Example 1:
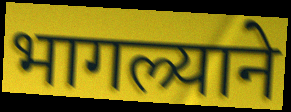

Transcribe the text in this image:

भागल्याने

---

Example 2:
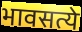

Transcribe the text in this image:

भावसत्ये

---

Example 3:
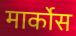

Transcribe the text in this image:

मार्कोस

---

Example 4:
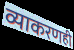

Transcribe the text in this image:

व्याकरणही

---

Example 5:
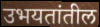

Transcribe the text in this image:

उभयतांतील